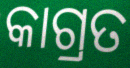
କାଗ୍ରତ